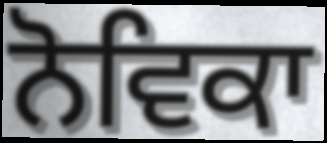
ਨੋਵਿਕਾ